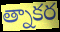
త్నాకర